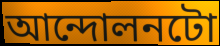
আন্দোলনটো